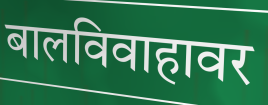
बालविवाहावर